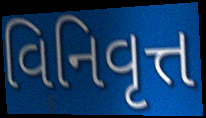
વિનિવૃત્ત